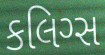
કલિગ્સ